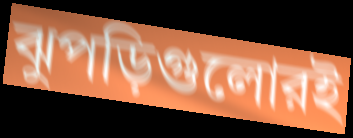
ঝুপড়িগুলোরই